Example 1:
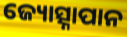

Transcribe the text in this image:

ଜ୍ୟୋତ୍ସ୍ନାପାନ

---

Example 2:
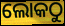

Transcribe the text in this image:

ଲୋକଠୁ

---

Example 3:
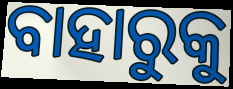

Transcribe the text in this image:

ବାହାରୁକୁ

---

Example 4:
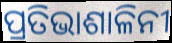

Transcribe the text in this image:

ପ୍ରତିଭାଶାଳିନୀ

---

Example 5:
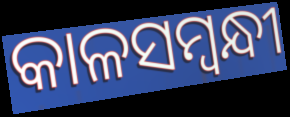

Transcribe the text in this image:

କାଳସମ୍ଵନ୍ଧୀ